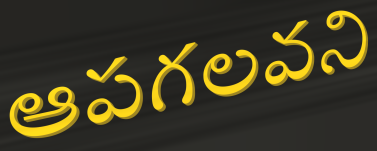
ఆపగలవని